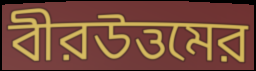
বীরউত্তমের